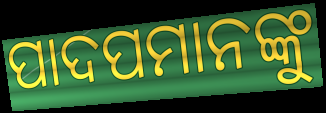
ପାଦପମାନଙ୍କୁ